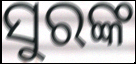
ସୁରଙ୍କ